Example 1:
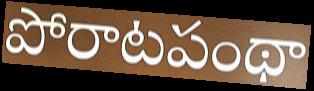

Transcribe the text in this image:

పోరాటపంథా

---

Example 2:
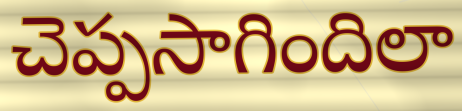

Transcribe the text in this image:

చెప్పసాగిందిలా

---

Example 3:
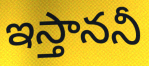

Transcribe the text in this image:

ఇస్తాననీ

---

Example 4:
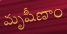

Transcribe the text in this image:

మృషీణాం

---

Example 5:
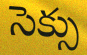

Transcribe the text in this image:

సెక్సు